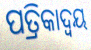
ପତ୍ରିକାଦ୍ୱୟ